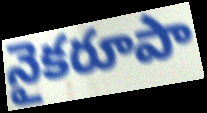
నైకరూపా